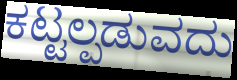
ಕಟ್ಟಲ್ಪಡುವದು